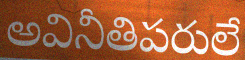
అవినీతిపరులే